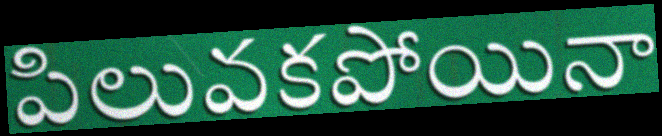
పిలువకపోయినా